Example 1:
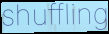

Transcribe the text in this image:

shuffling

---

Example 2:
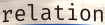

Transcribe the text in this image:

relation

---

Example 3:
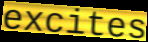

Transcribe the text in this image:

excites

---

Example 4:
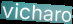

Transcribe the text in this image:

vicharo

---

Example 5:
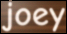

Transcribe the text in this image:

joey